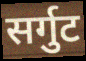
सर्गुट